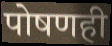
पोषणही